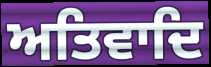
ਅਤਿਵਾਦਿ